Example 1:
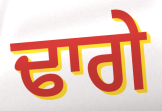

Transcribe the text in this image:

ਢਾਗੇ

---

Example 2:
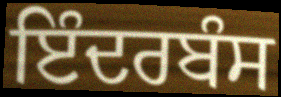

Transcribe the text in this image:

ਇੰਦਰਬੰਸ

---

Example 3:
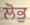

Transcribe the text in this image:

ਲੋਭੁ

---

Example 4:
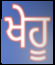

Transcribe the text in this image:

ਖੇਹੂ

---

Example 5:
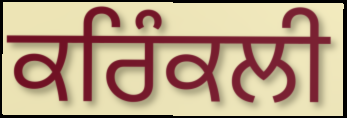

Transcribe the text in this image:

ਕਰਿੰਕਲੀ